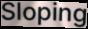
Sloping